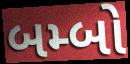
બમ્બો